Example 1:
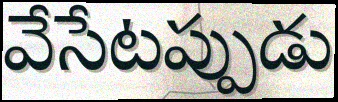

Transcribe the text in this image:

వేసేటప్పుడు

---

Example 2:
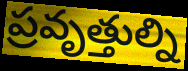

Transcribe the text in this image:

ప్రవృత్తుల్ని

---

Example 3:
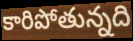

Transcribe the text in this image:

కారిపోతున్నది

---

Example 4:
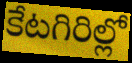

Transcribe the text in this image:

కేటగిరిల్లో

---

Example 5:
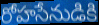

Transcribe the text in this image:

రోహసేనుడికి